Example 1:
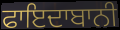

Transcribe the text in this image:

ਫਾਇਦਾਬਾਨੀ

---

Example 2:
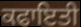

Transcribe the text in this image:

ਕਫਾਇਤੀ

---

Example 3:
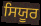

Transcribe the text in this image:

ਸਿਯੂਰ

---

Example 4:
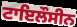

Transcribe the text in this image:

ਟਾਇਲੌਸੀਨ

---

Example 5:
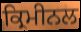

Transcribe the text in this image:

ਕ੍ਰਿਮੀਨਲ